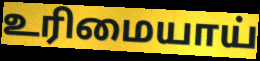
உரிமையாய்